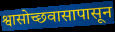
श्वासोच्छवासापासून